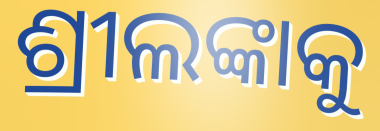
ଶ୍ରୀଲଙ୍କାକୁ